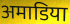
अमाडिया